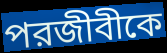
পরজীবীকে